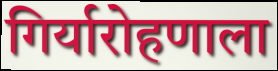
गिर्यारोहणाला